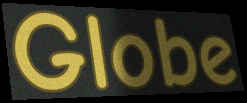
Globe